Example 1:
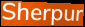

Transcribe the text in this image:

Sherpur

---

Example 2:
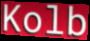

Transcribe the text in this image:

Kolb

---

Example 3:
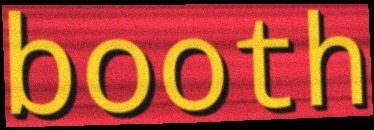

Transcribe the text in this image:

booth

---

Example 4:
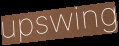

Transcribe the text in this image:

upswing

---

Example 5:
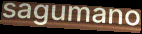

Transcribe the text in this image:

sagumano